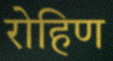
रोहिण